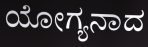
ಯೋಗ್ಯನಾದ